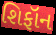
શિફૉન